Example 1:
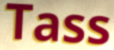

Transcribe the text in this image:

Tass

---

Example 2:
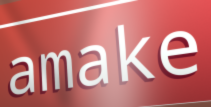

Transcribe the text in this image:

amake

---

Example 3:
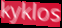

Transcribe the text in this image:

kyklos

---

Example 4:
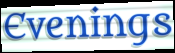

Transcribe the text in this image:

Evenings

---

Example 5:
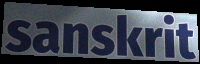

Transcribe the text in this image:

sanskrit